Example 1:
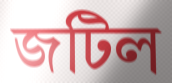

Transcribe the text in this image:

জটিল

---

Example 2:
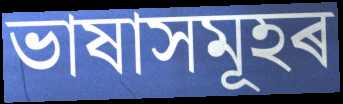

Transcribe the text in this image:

ভাষাসমূহৰ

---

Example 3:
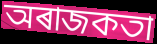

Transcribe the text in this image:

অৰাজকতা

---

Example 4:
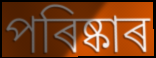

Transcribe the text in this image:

পৰিষ্কাৰ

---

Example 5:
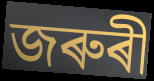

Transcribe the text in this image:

জৰুৰী